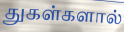
துகள்களால்